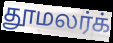
தூமலர்க்